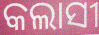
କଲାସୀ